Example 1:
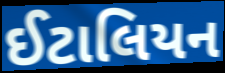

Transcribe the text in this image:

ઈટાલિયન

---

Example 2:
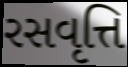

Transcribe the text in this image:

રસવૃત્તિ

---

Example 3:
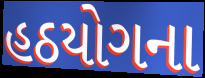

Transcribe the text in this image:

હઠયોગના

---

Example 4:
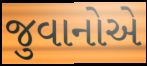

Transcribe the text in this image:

જુવાનોએ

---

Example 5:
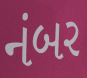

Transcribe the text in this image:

નંબર